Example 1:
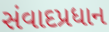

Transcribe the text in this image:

સંવાદપ્રધાન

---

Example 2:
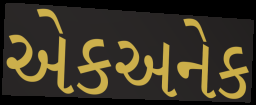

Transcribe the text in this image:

એકઅનેક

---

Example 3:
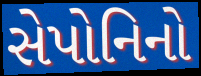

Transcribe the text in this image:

સેપોનિનો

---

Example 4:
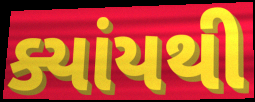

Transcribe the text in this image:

ક્યાંયથી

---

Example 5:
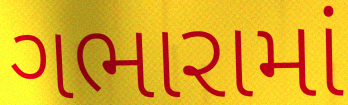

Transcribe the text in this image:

ગભારામાં